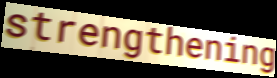
strengthening